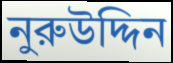
নুরুউদ্দিন